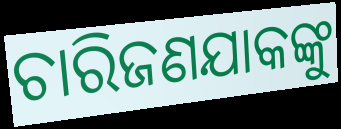
ଚାରିଜଣଯାକଙ୍କୁ